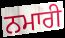
ਨਮਾਰੀ